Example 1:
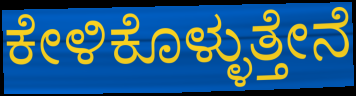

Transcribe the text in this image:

ಕೇಳಿಕೊಳ್ಳುತ್ತೇನೆ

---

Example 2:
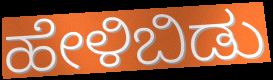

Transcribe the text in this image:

ಹೇಳಿಬಿಡು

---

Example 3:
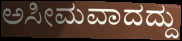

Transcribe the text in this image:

ಅಸೀಮವಾದದ್ದು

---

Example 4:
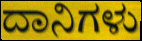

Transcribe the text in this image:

ದಾನಿಗಳು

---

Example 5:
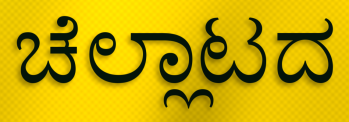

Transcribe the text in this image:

ಚೆಲ್ಲಾಟದ